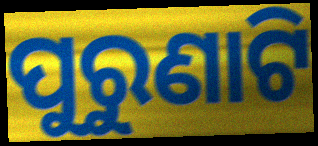
ପୁରୁଣାଟି